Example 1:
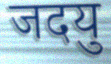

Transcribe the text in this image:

जदयु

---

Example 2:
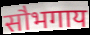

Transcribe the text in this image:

सौभगाय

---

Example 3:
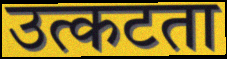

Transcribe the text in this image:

उत्कटता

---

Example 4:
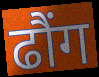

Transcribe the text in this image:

ढौंग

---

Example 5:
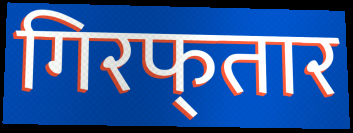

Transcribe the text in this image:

गिरफ्‌तार